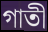
গাতী